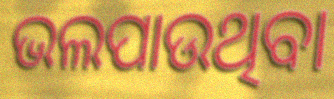
ଭଲପାଉଥିବା